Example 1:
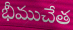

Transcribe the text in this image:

భీముచేత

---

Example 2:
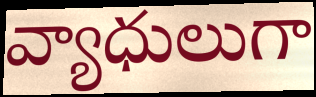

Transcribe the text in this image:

వ్యాధులుగా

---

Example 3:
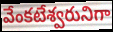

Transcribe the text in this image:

వేంకటేశ్వరునిగా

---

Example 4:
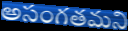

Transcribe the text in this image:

అసంగతమని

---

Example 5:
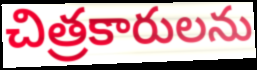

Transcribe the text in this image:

చిత్రకారులను